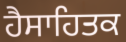
ਹੈਸਾਹਿਤਕ